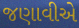
જણાવીએ